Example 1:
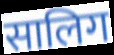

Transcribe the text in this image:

सालिग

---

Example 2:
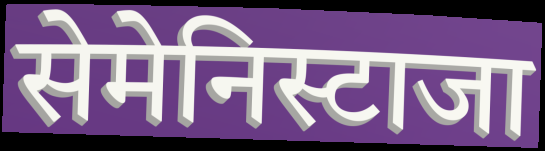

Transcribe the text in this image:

सेमेनिस्टाजा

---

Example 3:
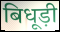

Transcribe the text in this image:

बिधूड़ी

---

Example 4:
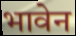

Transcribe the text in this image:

भावेन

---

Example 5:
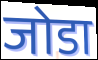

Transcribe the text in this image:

जोडा